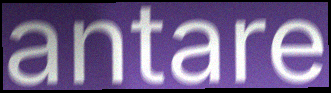
antare